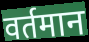
वर्तमान